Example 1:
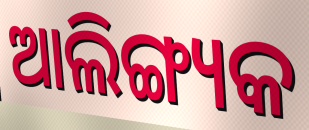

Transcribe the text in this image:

ଆଲିଙ୍ଗ୍ୟକ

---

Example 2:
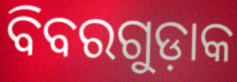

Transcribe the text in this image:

ବିବରଗୁଡ଼ାକ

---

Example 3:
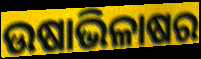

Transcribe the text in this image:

ଉଷାଭିଳାଷର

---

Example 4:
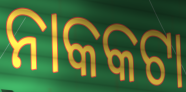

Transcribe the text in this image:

ନାକକଟା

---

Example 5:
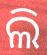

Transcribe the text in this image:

ଲି